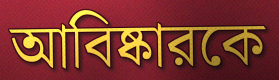
আবিষ্কারকে